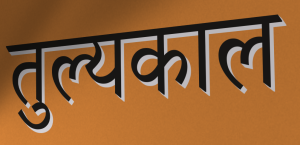
तुल्यकाल